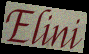
Elini